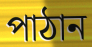
পাঠান